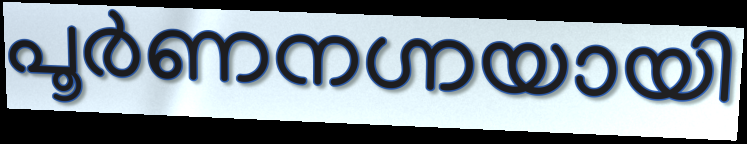
പൂർണനഗ്നയായി